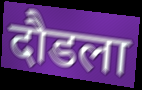
दौडला